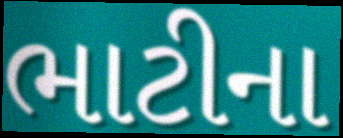
ભાટીના